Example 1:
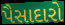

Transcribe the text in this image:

પૈસાદારો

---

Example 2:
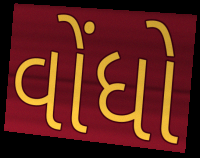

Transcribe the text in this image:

વોંધો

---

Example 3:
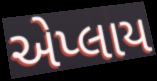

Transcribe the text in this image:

એપ્લાય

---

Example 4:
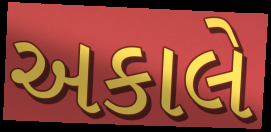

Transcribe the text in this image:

અકાલે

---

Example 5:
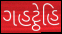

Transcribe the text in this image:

ગહટ્ઠેહિ